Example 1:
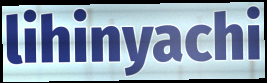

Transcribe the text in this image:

lihinyachi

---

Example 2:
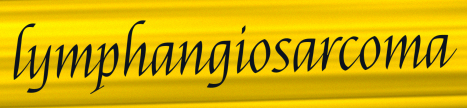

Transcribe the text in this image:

lymphangiosarcoma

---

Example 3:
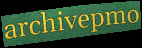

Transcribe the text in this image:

archivepmo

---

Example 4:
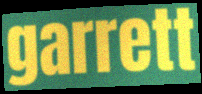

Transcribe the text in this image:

garrett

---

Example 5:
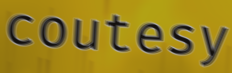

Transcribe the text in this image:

coutesy